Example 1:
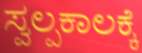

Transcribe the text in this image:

ಸ್ವಲ್ಪಕಾಲಕ್ಕೆ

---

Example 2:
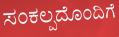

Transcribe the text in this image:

ಸಂಕಲ್ಪದೊಂದಿಗೆ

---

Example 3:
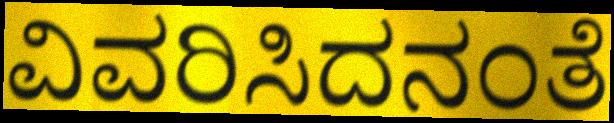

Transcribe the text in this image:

ವಿವರಿಸಿದನಂತೆ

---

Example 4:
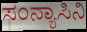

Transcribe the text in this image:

ಸಂನ್ಯಾಸಿನಿ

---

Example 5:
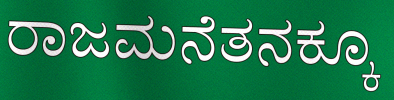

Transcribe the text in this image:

ರಾಜಮನೆತನಕ್ಕೂ